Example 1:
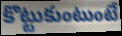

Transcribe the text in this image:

కొట్టుకుంటుంటే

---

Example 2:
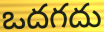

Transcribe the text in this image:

ఒదగదు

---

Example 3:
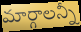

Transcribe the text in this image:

మార్గాలన్నీ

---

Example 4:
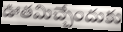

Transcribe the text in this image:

ఊతమిచ్చేందుకు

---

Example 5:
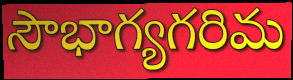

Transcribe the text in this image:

సౌభాగ్యగరిమ